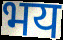
भय